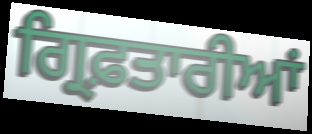
ਗ੍ਰਿਫ਼ਤਾਰੀਆਂ